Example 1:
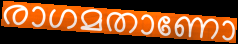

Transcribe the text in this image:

രാഗമതാണോ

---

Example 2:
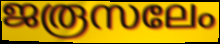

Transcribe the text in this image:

ജരൂസലേം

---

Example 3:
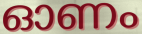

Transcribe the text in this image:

ഓണം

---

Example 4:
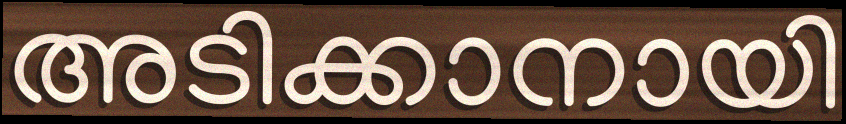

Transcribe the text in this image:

അടിക്കാനായി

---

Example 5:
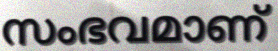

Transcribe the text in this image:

സംഭവമാണ്